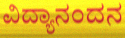
ವಿದ್ಯಾನಂದನ